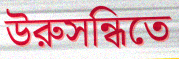
উরুসন্ধিতে